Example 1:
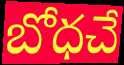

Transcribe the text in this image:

బోధచే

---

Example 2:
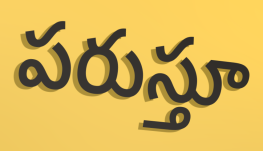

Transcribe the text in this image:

పరుస్తూ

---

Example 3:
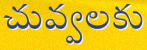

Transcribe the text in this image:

చువ్వలకు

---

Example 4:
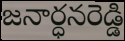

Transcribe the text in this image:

జనార్ధనరెడ్డి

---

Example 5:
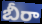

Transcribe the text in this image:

బీరా